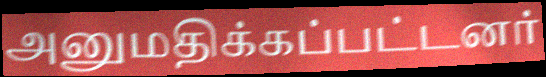
அனுமதிக்கப்பட்டனர்